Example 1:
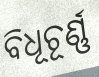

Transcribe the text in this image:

ବିଧୂଚୂର୍ଣ୍ଣ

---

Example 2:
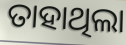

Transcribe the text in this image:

ତାହାଥିଲା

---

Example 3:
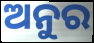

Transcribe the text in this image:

ଅନୁର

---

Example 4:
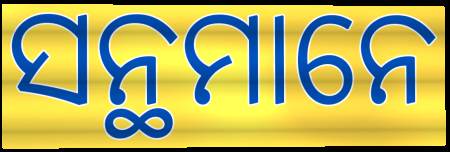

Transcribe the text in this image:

ସନ୍ଥମାନେ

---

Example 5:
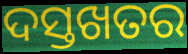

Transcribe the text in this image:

ଦସ୍ତଖତର